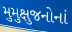
મુમુક્ષુજનોનાં